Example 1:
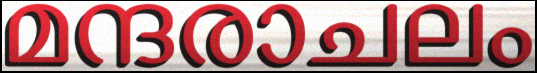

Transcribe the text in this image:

മന്ദരാചലം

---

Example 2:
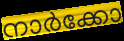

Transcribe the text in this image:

നാർക്കോ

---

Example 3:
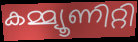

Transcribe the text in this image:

കമ്മ്യൂണിറ്റി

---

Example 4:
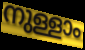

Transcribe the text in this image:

നുള്ളാം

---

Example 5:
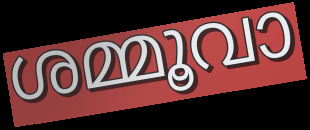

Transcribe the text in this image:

ശമ്മൂവാ